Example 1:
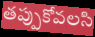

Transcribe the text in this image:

తప్పుకోవలసి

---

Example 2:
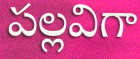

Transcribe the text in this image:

పల్లవిగా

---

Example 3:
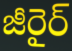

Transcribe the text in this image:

జీరైర్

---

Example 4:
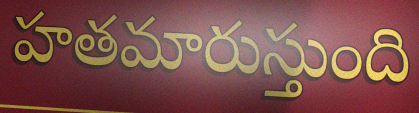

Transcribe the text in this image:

హతమారుస్తుంది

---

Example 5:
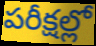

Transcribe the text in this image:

పరీక్షల్లో